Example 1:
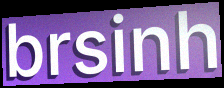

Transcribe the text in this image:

brsinh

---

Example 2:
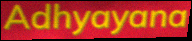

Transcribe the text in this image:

Adhyayana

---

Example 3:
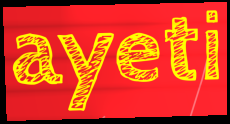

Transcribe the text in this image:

ayeti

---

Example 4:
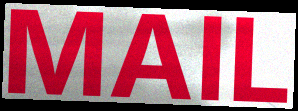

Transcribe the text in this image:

MAIL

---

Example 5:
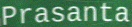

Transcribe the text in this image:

Prasanta